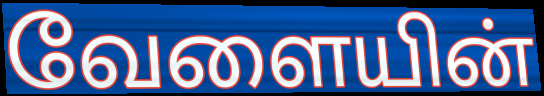
வேளையின்